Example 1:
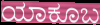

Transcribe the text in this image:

ಯಾಕೂಬ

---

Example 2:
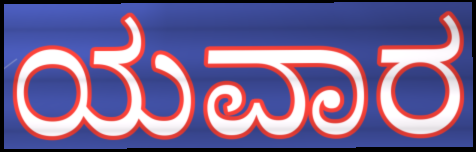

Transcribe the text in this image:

ಯವಾರ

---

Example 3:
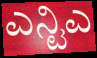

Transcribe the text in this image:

ಎನ್ಟಿಎ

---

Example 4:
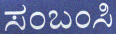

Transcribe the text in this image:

ಸಂಬಂಸಿ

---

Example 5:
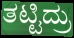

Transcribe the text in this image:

ತಟ್ಟಿದ್ರು